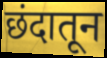
छंदातून